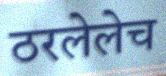
ठरलेलेच